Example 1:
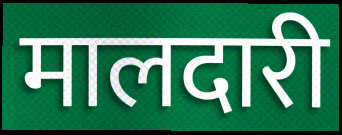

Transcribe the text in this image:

मालदारी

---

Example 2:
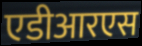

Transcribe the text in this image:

एडीआरएस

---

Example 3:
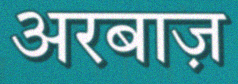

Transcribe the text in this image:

अरबाज़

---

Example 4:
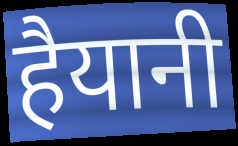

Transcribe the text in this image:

हैयानी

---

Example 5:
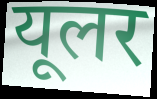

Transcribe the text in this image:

यूलर